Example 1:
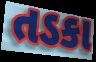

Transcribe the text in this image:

તડકા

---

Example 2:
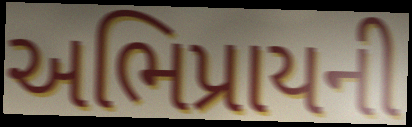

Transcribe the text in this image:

અભિપ્રાયની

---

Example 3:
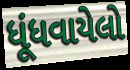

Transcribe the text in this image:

ધૂંધવાયેલો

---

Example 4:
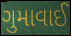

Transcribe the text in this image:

ગુમાવાઈ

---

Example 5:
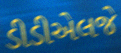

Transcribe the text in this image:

ડીડીએલજે